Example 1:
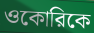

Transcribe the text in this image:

ওকোরিকে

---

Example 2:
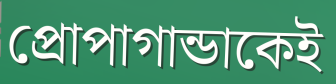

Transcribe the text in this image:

প্রোপাগান্ডাকেই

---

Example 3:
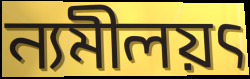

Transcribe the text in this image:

ন্যমীলয়ৎ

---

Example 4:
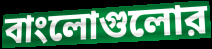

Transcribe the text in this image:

বাংলোগুলোর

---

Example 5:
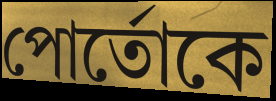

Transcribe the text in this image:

পোর্তোকে